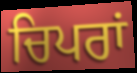
ਚਿਪਰਾਂ